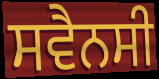
ਸਵੈਨਸੀ